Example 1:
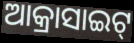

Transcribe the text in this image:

ଆକ୍ରାସାଇଟ୍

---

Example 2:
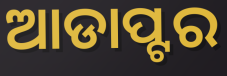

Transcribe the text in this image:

ଆଡାପ୍ଟର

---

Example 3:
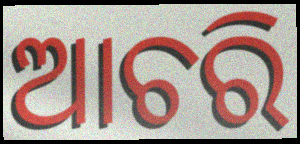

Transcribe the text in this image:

ଆଚରି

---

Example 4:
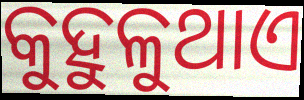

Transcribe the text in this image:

କୁହୁଳୁଥାଏ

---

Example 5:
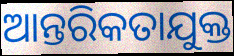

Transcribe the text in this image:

ଆନ୍ତରିକତାଯୁକ୍ତ